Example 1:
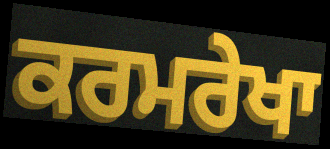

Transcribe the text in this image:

ਕਰਮਰੇਖਾ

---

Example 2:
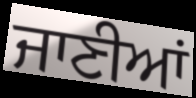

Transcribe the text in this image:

ਜਾਣੀਆਂ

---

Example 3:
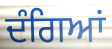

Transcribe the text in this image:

ਦੰਗਿਆਂ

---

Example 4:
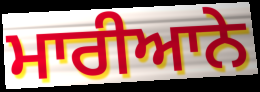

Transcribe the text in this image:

ਮਾਰੀਆਨੇ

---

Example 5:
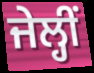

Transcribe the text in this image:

ਜੇਲ੍ਹੀਂ